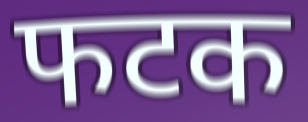
फटक